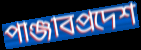
পাঞ্জাবপ্রদেশ